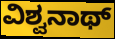
ವಿಶ್ವನಾಥ್